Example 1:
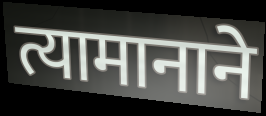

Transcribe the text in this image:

त्यामानाने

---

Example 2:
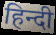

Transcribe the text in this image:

हिन्दी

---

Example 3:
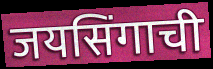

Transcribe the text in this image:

जयसिंगाची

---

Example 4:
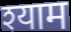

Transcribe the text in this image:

श्‍याम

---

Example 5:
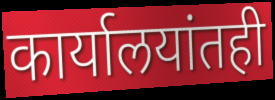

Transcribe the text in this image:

कार्यालयांतही